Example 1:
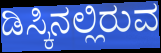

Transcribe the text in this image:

ಡಿಸ್ಕಿನಲ್ಲಿರುವ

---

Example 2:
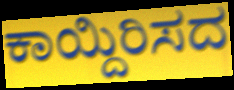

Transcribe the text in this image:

ಕಾಯ್ದಿರಿಸದ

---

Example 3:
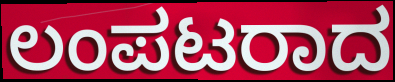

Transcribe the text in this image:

ಲಂಪಟರಾದ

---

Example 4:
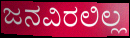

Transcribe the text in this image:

ಜನವಿರಲಿಲ್ಲ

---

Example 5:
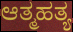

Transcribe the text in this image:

ಆತ್ಮಹತ್ಯ